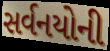
સર્વનયોની